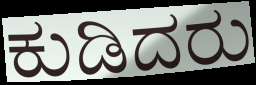
ಕುಡಿದರು